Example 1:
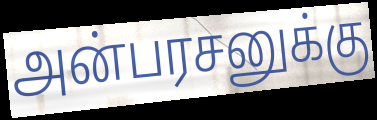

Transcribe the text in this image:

அன்பரசனுக்கு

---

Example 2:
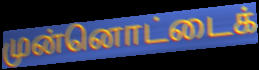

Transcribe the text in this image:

முன்னொட்டைக்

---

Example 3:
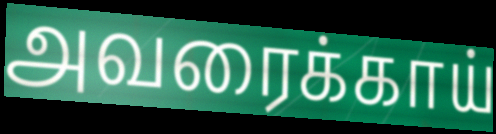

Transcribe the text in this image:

அவரைக்காய்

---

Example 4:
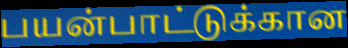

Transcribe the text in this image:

பயன்பாட்டுக்கான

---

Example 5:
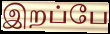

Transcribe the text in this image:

இறப்பே